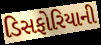
ડિસફોરિયાની